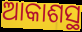
ଆକାଶସ୍ଥ